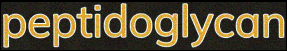
peptidoglycan